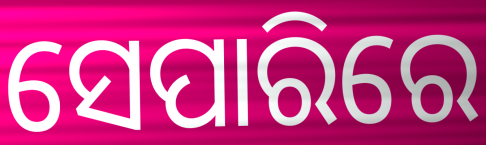
ସେପାରିରେ